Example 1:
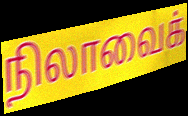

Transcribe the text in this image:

நிலாவைக்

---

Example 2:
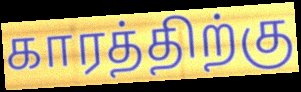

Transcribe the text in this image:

காரத்திற்கு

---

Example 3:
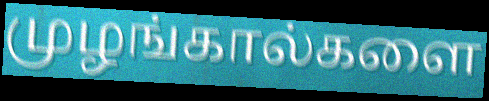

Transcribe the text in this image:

முழங்கால்களை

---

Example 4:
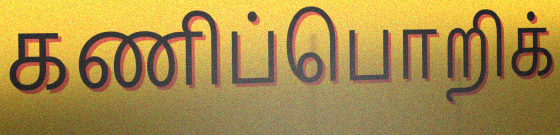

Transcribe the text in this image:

கணிப்பொறிக்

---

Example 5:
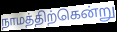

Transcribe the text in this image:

நாமத்திற்கென்று